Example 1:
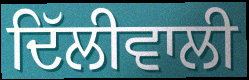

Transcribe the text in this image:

ਦਿੱਲੀਵਾਲੀ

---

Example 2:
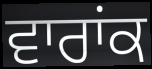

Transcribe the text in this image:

ਵਾਰਾਂਕ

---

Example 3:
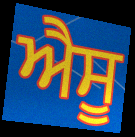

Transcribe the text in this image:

ਐਸੂ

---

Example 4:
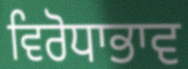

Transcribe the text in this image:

ਵਿਰੋਧਾਭਾਵ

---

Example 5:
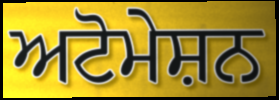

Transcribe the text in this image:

ਅਟੋਮੇਸ਼ਨ